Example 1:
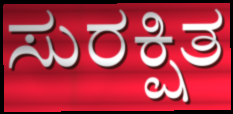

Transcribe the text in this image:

ಸುರಕ್ಷಿತ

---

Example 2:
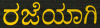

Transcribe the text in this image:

ರಜೆಯಾಗಿ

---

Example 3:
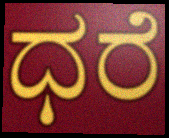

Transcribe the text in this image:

ಧರೆ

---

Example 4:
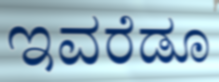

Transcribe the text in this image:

ಇವರೆಡೂ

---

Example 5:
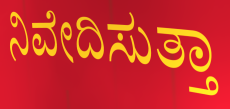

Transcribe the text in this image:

ನಿವೇದಿಸುತ್ತಾ